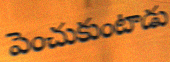
పెంచుకుంటాడు